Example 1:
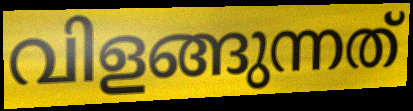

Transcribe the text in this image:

വിളങ്ങുന്നത്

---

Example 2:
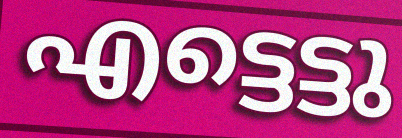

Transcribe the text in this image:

എട്ടെട്ടു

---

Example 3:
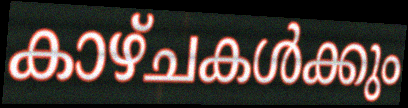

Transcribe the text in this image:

കാഴ്ചകൾക്കും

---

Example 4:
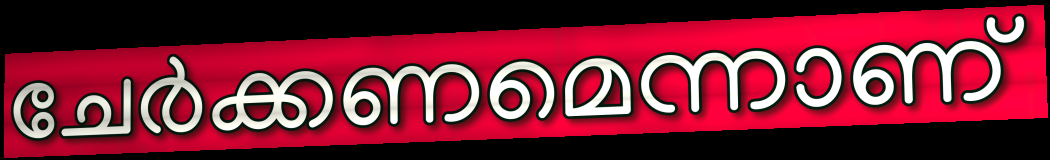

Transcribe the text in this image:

ചേർക്കണമെന്നാണ്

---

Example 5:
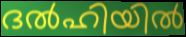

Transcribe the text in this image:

ദൽഹിയിൽ